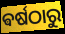
ଵର୍ଷଠାରୁ